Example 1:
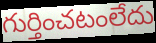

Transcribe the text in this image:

గుర్తించటంలేదు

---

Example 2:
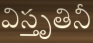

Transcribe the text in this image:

విస్తృతినీ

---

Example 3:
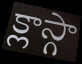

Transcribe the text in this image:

క్లాస్గా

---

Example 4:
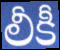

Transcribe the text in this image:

లీకీ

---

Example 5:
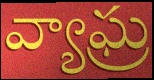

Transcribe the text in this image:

వ్యాఘ్ర